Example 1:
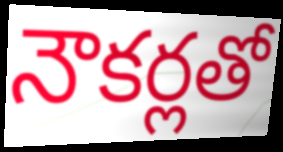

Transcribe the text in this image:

నౌకర్లతో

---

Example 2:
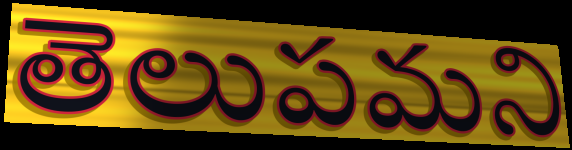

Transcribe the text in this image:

తెలుపమని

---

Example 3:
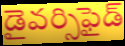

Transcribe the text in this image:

డైవర్సిఫైడ్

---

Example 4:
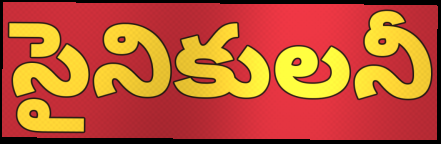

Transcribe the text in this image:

సైనికులనీ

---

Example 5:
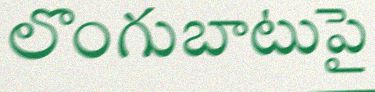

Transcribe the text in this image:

లొంగుబాటుపై